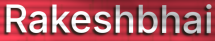
Rakeshbhai